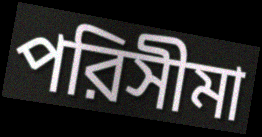
পরিসীমা